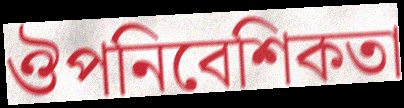
ঔপনিবেশিকতা